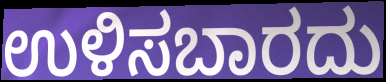
ಉಳಿಸಬಾರದು